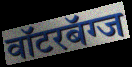
वॉटरबॅग्ज